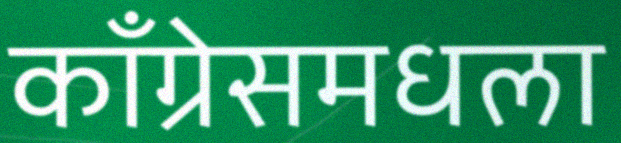
काँग्रेसमधला